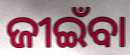
ଜୀଇଁବା